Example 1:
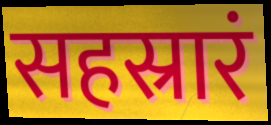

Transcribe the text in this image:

सहस्रारं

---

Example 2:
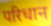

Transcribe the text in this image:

परिधान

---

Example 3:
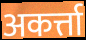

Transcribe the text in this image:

अकर्त्ता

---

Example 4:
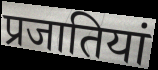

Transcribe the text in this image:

प्रजातियां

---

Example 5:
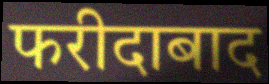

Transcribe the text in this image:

फरीदाबाद